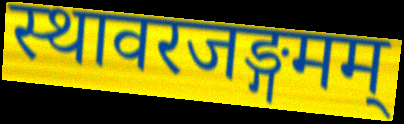
स्थावरजङ्गमम्